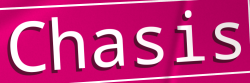
Chasis